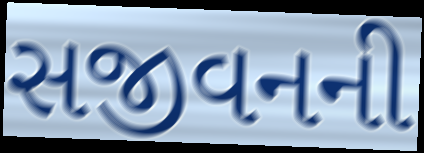
સજીવનની